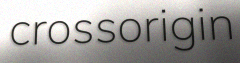
crossorigin